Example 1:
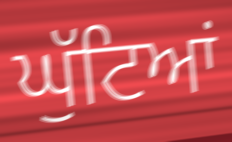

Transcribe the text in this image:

ਘੁੱਟਿਆਂ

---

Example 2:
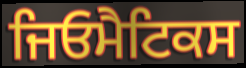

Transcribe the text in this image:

ਜਿਓਮੈਟਿਕਸ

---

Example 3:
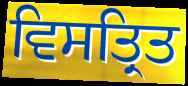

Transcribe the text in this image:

ਵਿਸਤ੍ਰਿਤ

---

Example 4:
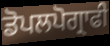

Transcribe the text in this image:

ਡੋਪਲਪੋਗ੍ਰਾਫੀ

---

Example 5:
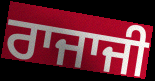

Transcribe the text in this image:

ਰਾਜਾਜੀ